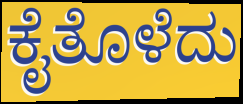
ಕೈತೊಳೆದು